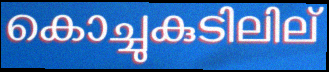
കൊച്ചുകുടിലില്